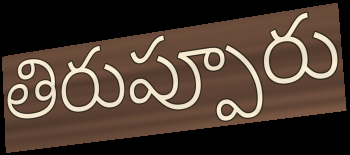
తిరుప్పూరు